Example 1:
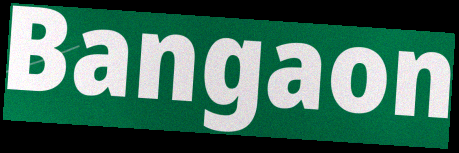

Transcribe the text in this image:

Bangaon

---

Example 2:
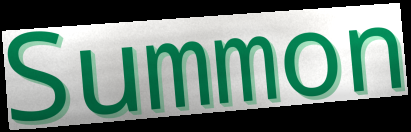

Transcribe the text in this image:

Summon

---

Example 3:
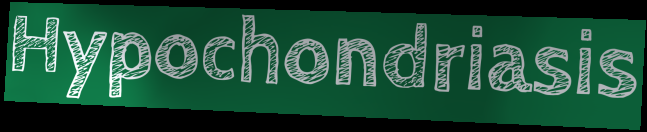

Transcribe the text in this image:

Hypochondriasis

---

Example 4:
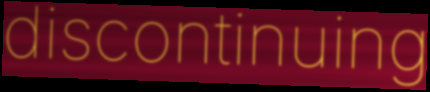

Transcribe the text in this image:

discontinuing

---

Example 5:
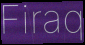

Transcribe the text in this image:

Firaq